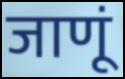
जाणूं